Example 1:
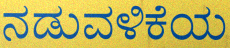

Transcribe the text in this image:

ನಡುವಳಿಕೆಯ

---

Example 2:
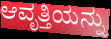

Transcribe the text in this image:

ಆವೃತ್ತಿಯನ್ನು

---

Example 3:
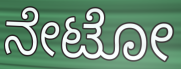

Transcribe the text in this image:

ನೇಟೋ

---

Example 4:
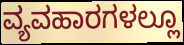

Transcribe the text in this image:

ವ್ಯವಹಾರಗಳಲ್ಲೂ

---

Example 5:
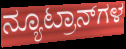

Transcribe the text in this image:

ನ್ಯೂಟ್ರಾನ್‌ಗಳ